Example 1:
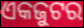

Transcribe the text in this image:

ଏକଜୁଟର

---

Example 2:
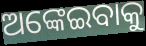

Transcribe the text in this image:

ଅଙ୍କେଇବାକୁ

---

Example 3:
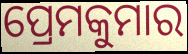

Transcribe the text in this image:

ପ୍ରେମକୁମାର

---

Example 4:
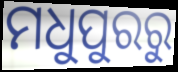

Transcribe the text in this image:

ମଧୁପୁରରୁ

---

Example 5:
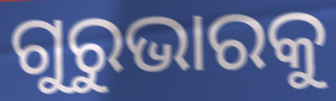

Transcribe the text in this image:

ଗୁରୁଭାରକୁ